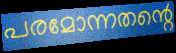
പരമോന്നതന്റെ